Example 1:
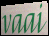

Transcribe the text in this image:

vaai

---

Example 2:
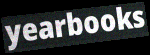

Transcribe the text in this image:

yearbooks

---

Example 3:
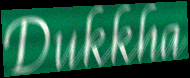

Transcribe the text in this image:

Dukkha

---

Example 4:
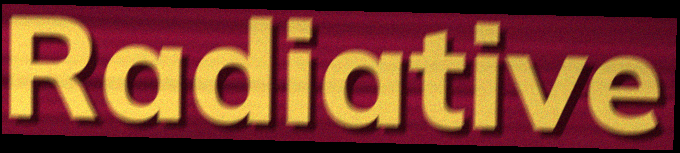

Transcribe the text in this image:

Radiative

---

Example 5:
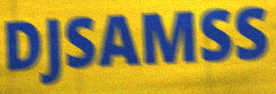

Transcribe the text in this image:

DJSAMSS